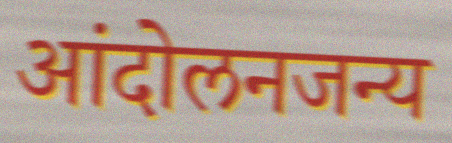
आंदोलनजन्य